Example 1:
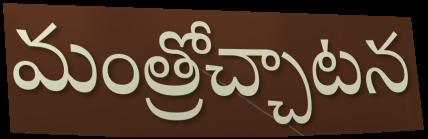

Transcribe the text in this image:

మంత్రోచ్చాటన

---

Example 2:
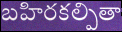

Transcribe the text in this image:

బహిరకల్పితా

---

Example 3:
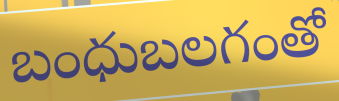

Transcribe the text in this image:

బంధుబలగంతో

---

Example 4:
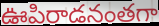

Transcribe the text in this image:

ఊపిరాడనంతగా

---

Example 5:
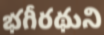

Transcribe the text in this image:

భగీరథుని